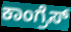
ಕಾಂಗ್ರೆಸ್